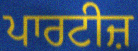
ਪਾਰਟੀਜ਼